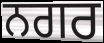
ਨਗਰ